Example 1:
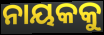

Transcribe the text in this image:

ନାୟକକୁ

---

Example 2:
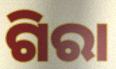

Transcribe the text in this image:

ଗିରା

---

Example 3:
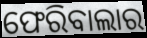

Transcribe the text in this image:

ଫେରିବାଲାର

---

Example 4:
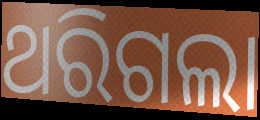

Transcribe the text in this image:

ଥରିଗଲା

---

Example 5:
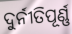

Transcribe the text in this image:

ଦୁର୍ନୀତିପୂର୍ଣ୍ଣ